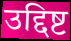
उद्दिष्ट